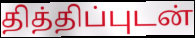
தித்திப்புடன்